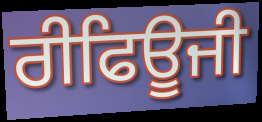
ਰੀਫਿਊਜੀ